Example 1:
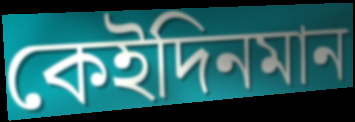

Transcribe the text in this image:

কেইদিনমান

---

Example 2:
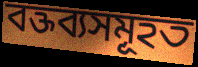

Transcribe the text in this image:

বক্তব্যসমূহত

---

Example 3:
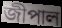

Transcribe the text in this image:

জীপাল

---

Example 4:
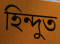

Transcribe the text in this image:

হিন্দুত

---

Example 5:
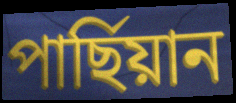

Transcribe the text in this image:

পাৰ্ছিয়ান